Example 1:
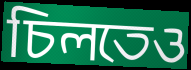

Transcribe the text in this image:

চিলতেও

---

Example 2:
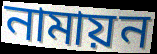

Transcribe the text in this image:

নামায়ন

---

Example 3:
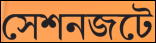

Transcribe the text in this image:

সেশনজটে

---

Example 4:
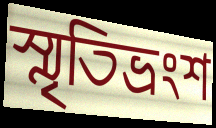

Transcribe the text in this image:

স্মৃতিভ্রংশ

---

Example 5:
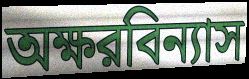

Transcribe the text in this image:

অক্ষরবিন্যাস